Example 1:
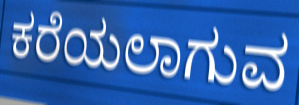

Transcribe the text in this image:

ಕರೆಯಲಾಗುವ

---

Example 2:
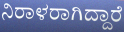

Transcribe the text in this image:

ನಿರಾಳರಾಗಿದ್ದಾರೆ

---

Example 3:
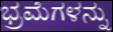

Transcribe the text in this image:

ಭ್ರಮೆಗಳನ್ನು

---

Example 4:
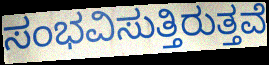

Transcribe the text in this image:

ಸಂಭವಿಸುತ್ತಿರುತ್ತವೆ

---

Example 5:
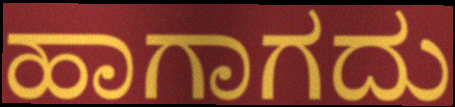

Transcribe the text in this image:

ಹಾಗಾಗದು